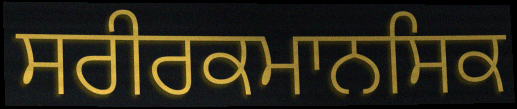
ਸਰੀਰਕਮਾਨਸਿਕ